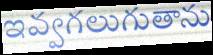
ఇవ్వగలుగుతాను